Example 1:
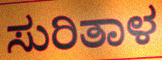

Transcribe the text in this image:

ಸುರಿತಾಳ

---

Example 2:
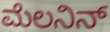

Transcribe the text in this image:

ಮೆಲನಿನ್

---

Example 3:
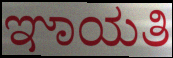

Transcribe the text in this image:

ಞಾಯತಿ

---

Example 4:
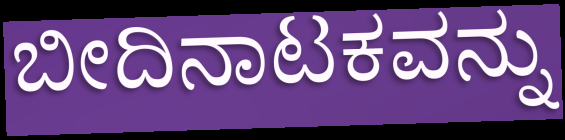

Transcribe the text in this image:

ಬೀದಿನಾಟಕವನ್ನು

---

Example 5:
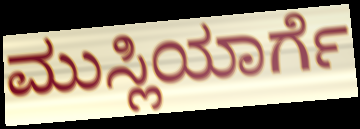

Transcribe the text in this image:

ಮುಸ್ಲಿಯಾರ್ಗೆ